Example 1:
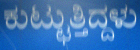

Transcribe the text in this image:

ಕುಟ್ಟುತ್ತಿದ್ದಳು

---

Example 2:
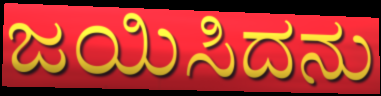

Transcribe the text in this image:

ಜಯಿಸಿದನು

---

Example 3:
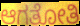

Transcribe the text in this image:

ಆಗತೋತಿ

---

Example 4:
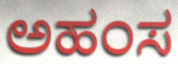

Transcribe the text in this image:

ಅಹಂಸ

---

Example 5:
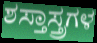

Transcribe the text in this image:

ಶಸ್ತಾಸ್ತ್ರಗಳ